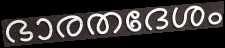
ഭാരതദേശം